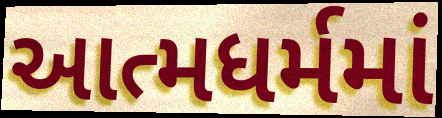
આત્મધર્મમાં